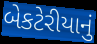
બેકટેરીયાનું